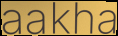
aakha